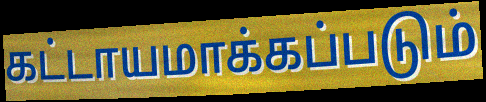
கட்டாயமாக்கப்படும்